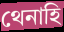
থেনাহি